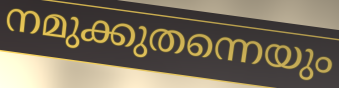
നമുക്കുതന്നെയും